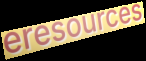
eresources